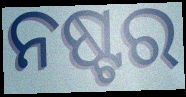
ନଷ୍ଟର